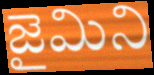
జైమిని